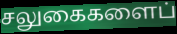
சலுகைகளைப்